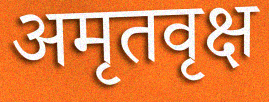
अमृतवृक्ष